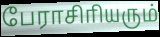
பேராசிரியரும்